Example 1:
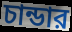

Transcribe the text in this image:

চান্ডার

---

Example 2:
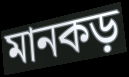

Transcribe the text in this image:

মানকড়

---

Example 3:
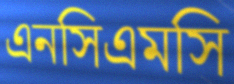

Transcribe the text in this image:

এনসিএমসি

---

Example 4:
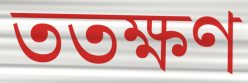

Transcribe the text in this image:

ততক্ষণ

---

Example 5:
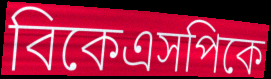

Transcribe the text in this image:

বিকেএসপিকে